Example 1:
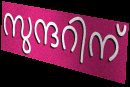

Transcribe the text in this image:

സുന്ദറിന്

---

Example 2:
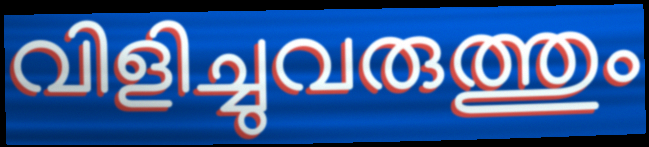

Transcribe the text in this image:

വിളിച്ചുവരുത്തും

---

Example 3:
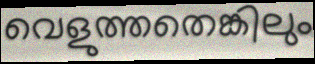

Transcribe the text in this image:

വെളുത്തതെങ്കിലും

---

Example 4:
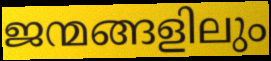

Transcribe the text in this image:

ജന്മങ്ങളിലും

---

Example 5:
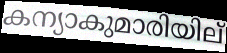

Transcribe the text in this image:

കന്യാകുമാരിയില്